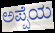
ಅಪ್ಪೆಯ